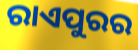
ରାଏପୁରର